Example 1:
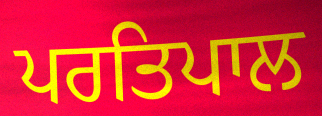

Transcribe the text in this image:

ਪਰਤਿਪਾਲ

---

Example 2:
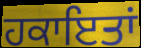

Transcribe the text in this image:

ਹਕਾਇਤਾਂ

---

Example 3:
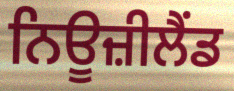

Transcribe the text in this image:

ਨਿਊਜ਼ੀਲੈੰਡ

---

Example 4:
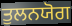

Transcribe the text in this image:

ਤੁਲਨਯੋਗ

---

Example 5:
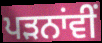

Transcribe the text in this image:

ਪੜਨਾਂਵੀਂ